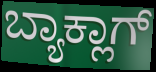
ಬ್ಯಾಕ್ಲಾಗ್